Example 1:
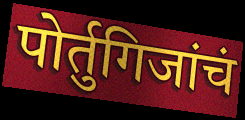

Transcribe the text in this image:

पोर्तुगिजांचं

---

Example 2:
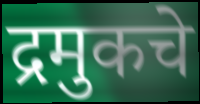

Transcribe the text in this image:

द्रमुकचे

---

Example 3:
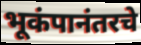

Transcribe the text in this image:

भूकंपानंतरचे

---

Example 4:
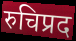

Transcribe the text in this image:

रुचिप्रद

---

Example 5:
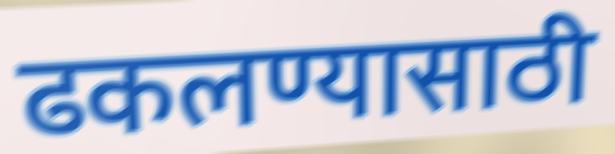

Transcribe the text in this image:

ढकलण्यासाठी